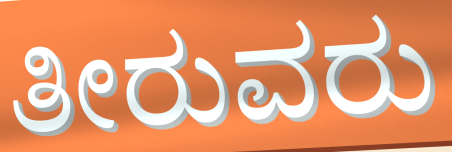
ತೀರುವರು